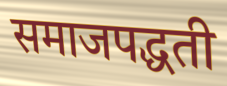
समाजपद्धती